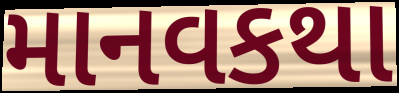
માનવકથા